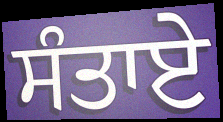
ਸੰਤਾਏ